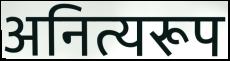
अनित्यरूप